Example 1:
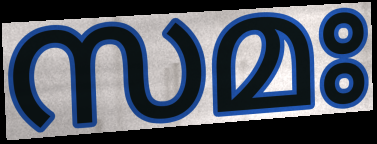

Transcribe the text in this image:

സമഃ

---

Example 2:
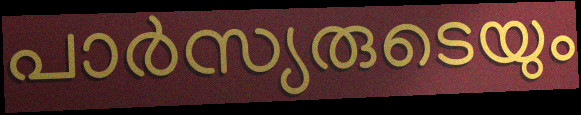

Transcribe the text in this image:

പാർസ്യരുടെയും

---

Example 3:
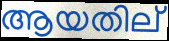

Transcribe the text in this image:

ആയതില്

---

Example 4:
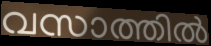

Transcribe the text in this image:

വസാത്തിൽ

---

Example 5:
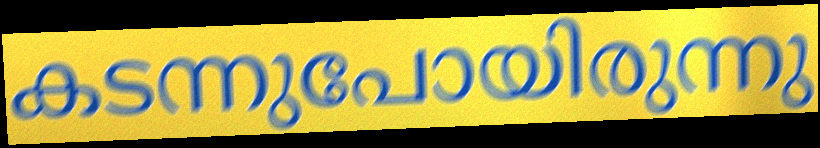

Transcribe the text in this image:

കടന്നുപോയിരുന്നു